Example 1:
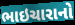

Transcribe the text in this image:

ભાઇચારાનો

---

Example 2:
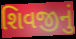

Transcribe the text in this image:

શિવજીનું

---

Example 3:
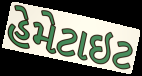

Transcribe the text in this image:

હેમેટાઇટ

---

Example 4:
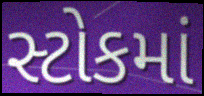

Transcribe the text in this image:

સ્ટોકમાં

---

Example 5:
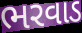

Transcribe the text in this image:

ભરવાડ